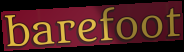
barefoot